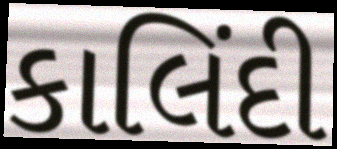
કાલિંદી